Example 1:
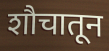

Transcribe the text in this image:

शौचातून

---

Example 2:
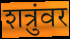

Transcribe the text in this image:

शत्रुंवर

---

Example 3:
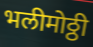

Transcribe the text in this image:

भलीमोठ्ठी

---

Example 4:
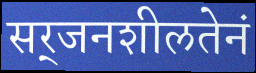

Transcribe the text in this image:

सर्जनशीलतेनं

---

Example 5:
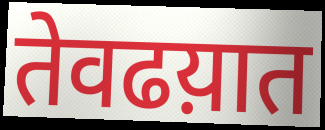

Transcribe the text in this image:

तेवढय़ात